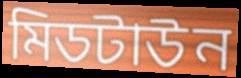
মিডটাউন